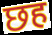
छह